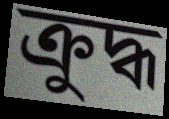
ক্ৰুদ্ধ